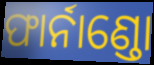
ଫାର୍ନାଣ୍ଡୋ